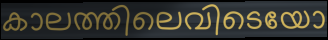
കാലത്തിലെവിടെയോ